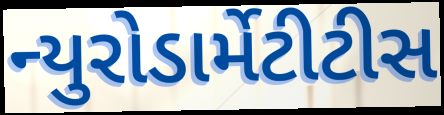
ન્યુરોડાર્મેટીટીસ